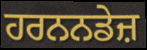
ਹਰਨਨਡੇਜ਼